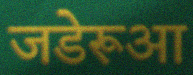
जडेरूआ